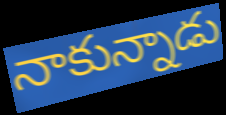
నాకున్నాడు